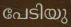
പേടിയു